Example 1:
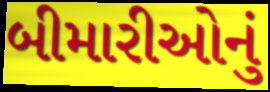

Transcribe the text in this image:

બીમારીઓનું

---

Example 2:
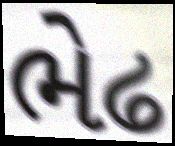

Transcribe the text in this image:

ભેઢ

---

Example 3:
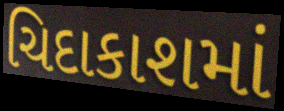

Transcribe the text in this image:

ચિદાકાશમાં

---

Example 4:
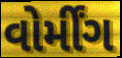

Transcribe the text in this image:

વોર્મીંગ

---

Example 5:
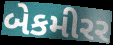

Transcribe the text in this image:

બેકમીરર